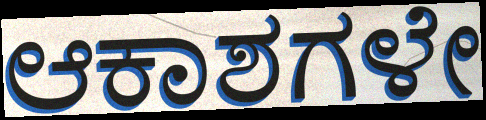
ಆಕಾಶಗಳೇ